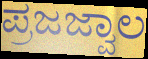
ಪ್ರಜಜ್ವಾಲ